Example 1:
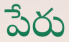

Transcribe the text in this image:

పేరు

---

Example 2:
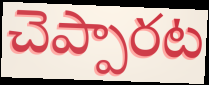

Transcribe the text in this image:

చెప్పారట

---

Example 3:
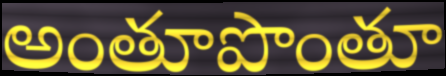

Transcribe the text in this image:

అంతూపొంతూ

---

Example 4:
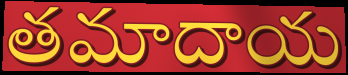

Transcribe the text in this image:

తమాదాయ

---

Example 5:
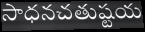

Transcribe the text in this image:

సాధనచతుష్టయ